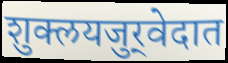
शुक्लयजुर्वेदात